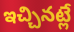
ఇచ్చినట్లే